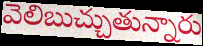
వెలిబుచ్చుతున్నారు